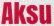
Aksu